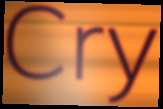
Cry